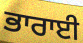
ਭਾਰਾਈ